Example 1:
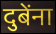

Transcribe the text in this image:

दुबेंना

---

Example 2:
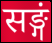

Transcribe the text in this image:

सङ्गं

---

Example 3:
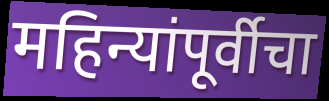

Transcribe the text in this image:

महिन्यांपूर्वीचा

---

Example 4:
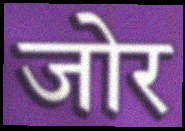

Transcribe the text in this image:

जोर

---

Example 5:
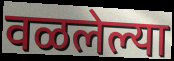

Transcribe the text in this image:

वळलेल्या